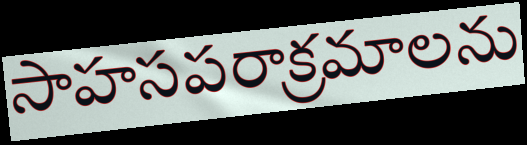
సాహసపరాక్రమాలను